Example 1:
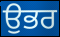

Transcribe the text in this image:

ਉਭਰ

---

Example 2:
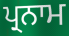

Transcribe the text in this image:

ਪ੍ਰਨਾਮ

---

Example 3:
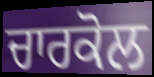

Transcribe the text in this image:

ਚਾਰਕੋਲ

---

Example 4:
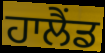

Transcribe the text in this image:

ਹਾਲੈਂਡ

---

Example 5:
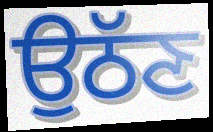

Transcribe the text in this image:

ਉਠੱਣ